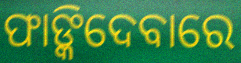
ଫାଙ୍କିଦେବାରେ